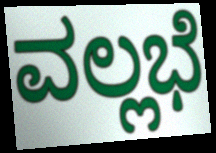
ವಲ್ಲಭೆ